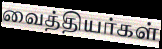
வைத்தியர்கள்